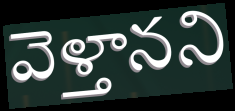
వెళ్తానని